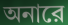
অনারে